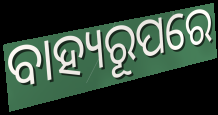
ବାହ୍ୟରୂପରେ